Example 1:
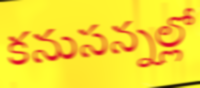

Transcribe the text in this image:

కనుసన్నల్లో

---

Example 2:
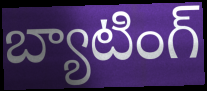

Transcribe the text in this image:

బ్యాటింగ్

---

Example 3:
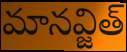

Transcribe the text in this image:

మానవ్జిత్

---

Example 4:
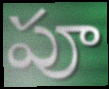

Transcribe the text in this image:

పూ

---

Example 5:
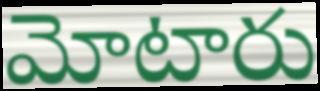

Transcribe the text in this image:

మోటారు